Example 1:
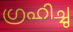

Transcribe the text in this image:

ഗ്രഹിച്ചു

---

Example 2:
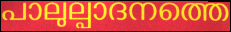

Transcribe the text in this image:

പാലുല്പാദനത്തെ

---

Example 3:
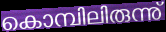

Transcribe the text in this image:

കൊമ്പിലിരുന്നു്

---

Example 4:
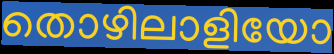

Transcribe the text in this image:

തൊഴിലാളിയോ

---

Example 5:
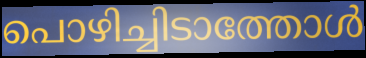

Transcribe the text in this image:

പൊഴിച്ചിടാത്തോൾ